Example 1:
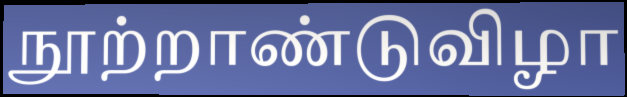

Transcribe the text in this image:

நூற்றாண்டுவிழா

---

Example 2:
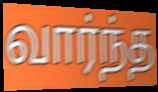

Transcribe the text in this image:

வார்ந்த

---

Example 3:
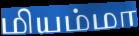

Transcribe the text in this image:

மியம்மா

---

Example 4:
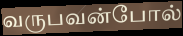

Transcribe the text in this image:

வருபவன்போல்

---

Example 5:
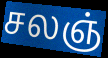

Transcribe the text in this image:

சலஞ்